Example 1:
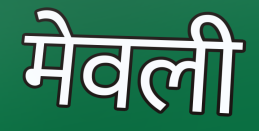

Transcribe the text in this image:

मेवली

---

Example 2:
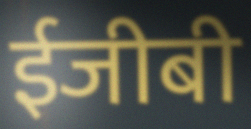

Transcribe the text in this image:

ईजीबी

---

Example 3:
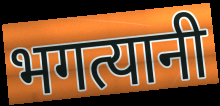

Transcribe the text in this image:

भगत्यानी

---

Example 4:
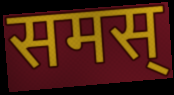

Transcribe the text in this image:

समस्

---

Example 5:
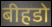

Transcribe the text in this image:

बीहडो